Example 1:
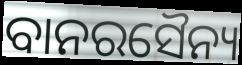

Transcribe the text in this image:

ବାନରସୈନ୍ୟ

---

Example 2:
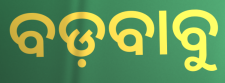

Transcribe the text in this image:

ବଡ଼ବାବୁ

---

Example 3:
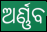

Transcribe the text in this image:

ଅର୍ଣ୍ଣବ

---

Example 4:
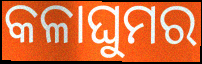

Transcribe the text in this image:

କଳାଘୁମର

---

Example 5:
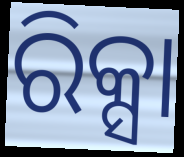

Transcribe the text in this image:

ରିକ୍ସା